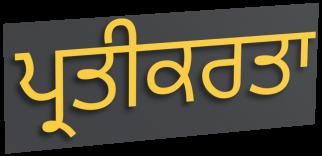
ਪ੍ਰਤੀਕਰਤਾ